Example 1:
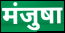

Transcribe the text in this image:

मंजुषा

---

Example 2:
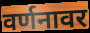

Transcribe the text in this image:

वर्णनावर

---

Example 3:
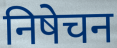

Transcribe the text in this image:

निषेचन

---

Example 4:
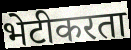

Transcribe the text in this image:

भेटीकरता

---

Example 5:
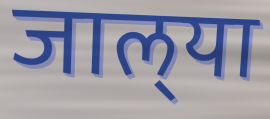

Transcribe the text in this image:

जाल्या